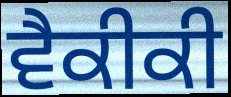
ਵੈਕੀਕੀ